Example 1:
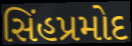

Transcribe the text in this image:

સિંહપ્રમોદ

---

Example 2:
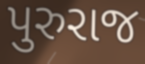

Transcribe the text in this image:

પુરુરાજ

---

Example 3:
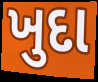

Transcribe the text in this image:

ખુદા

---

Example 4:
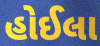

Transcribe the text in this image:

હોઈલા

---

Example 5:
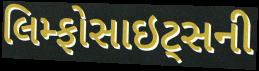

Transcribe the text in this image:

લિમ્ફોસાઇટ્સની